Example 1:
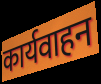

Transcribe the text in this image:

कार्यवाहन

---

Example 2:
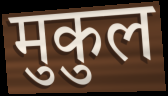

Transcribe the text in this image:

मुकुल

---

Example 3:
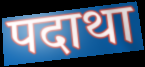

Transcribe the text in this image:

पदाथा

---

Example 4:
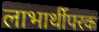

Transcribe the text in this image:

लाभार्थीपरक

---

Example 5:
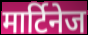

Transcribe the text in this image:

मार्टिनेज